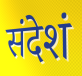
संदेशं